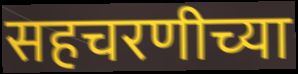
सहचरणीच्या